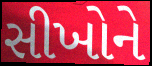
સીખોને